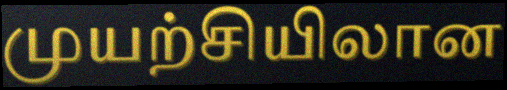
முயற்சியிலான